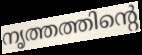
നൃത്തത്തിന്റെ